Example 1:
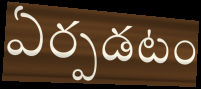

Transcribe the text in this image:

ఏర్పడటం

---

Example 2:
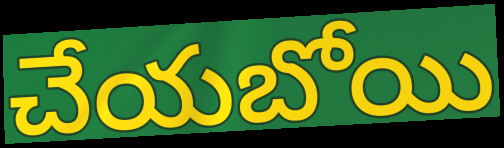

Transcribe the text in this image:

చేయబోయి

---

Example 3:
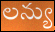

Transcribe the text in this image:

లన్యు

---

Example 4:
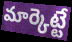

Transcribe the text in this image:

మార్కెట్టే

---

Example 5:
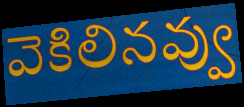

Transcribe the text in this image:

వెకిలినవ్వు